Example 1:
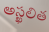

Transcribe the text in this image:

అస్ఖలిత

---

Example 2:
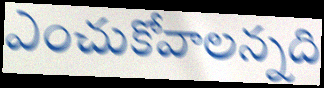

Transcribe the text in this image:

ఎంచుకోవాలన్నది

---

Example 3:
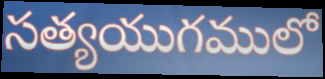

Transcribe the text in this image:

సత్యయుగములో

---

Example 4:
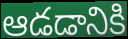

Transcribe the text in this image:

ఆడడానికి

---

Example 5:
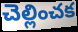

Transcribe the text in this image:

చెల్లించక